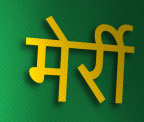
मेर्री